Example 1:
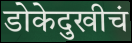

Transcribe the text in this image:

डोकेदुखीचं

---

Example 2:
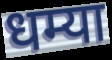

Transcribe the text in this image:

धम्या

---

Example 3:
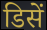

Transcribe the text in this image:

डिसें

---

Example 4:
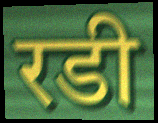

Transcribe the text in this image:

रडी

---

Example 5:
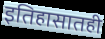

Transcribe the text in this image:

इतिहासातही